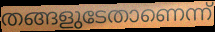
തങ്ങളുടേതാണെന്ന്